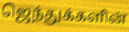
ஜெந்துக்களின்